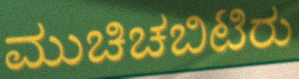
ಮುಚಿಚಬಿಟಿರು